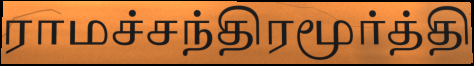
ராமச்சந்திரமூர்த்தி